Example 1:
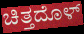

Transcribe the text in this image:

ಚಿತ್ತದೊಳ್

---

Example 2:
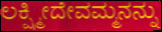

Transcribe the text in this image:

ಲಕ್ಷ್ಮೀದೇವಮ್ಮನನ್ನು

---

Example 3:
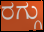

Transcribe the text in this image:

ರಗ್ಗು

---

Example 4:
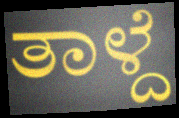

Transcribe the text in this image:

ತಾಳ್ದೆ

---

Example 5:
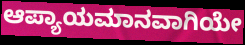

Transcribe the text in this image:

ಆಪ್ಯಾಯಮಾನವಾಗಿಯೇ